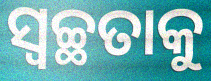
ସ୍ବଚ୍ଛତାକୁ